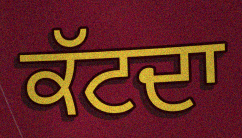
ਕੱਟਦਾ